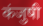
कंजुषी